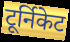
टूर्निकेट